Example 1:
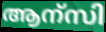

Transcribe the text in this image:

ആന്സി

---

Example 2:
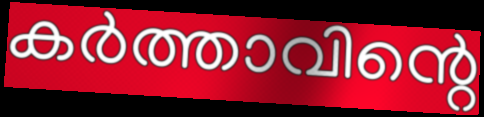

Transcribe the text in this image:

കർത്താവിന്റെ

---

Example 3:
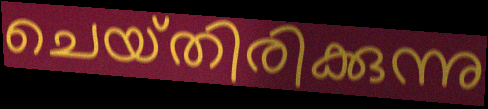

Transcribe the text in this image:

ചെയ്‌തിരിക്കുന്നു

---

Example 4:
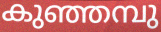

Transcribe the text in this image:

കുഞ്ഞമ്പു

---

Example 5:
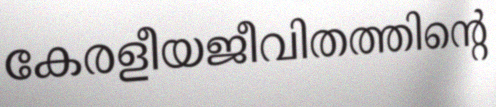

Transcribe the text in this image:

കേരളീയജീവിതത്തിന്റെ